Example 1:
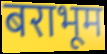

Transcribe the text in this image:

बराभूम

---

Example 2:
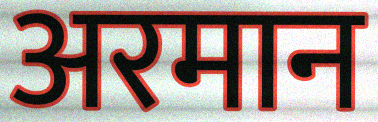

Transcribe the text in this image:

अरमान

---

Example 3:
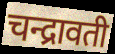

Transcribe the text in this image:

चन्द्रावती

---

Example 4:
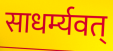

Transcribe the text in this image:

साधर्म्यवत्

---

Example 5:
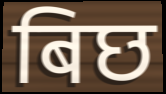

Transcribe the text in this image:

बिछ